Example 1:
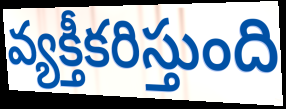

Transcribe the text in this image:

వ్యక్తీకరిస్తుంది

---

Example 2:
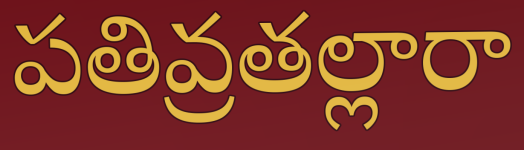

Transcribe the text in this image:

పతివ్రతల్లారా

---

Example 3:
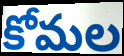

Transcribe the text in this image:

కోమల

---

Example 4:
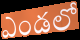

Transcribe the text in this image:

ఎండలో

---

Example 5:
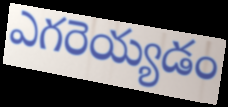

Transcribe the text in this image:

ఎగరెయ్యడం